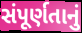
સંપૂર્ણતાનું